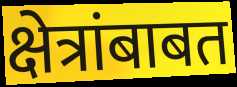
क्षेत्रांबाबत